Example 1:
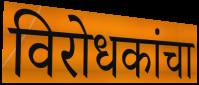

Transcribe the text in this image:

विरोधकांचा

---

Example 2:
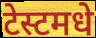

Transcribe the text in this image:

टेस्टमधे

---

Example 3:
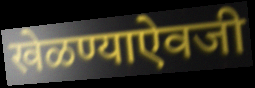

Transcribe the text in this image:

खेळण्याऐवजी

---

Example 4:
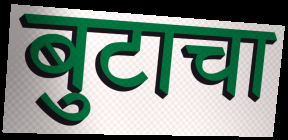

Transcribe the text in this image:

बुटाचा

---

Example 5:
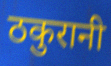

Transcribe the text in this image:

ठकुरानी